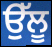
ਉੱਲੂ